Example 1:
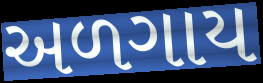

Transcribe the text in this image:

અળગાય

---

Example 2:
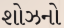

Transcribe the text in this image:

શોઝનો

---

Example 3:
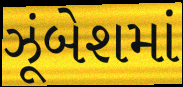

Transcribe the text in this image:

ઝૂંબેશમાં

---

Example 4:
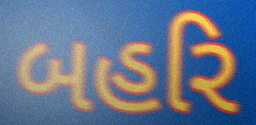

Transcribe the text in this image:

બહરિ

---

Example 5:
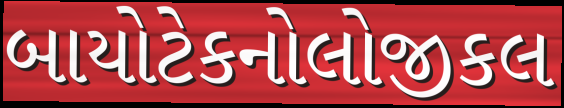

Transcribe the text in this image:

બાયોટેકનોલોજીકલ